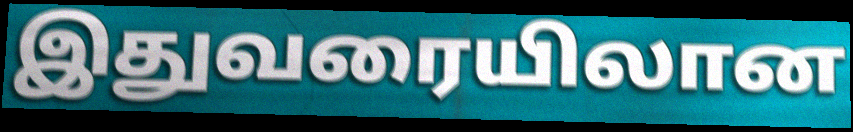
இதுவரையிலான